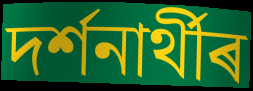
দৰ্শনাৰ্থীৰ